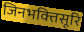
जिनभक्तिसूरि